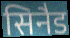
सिनैड